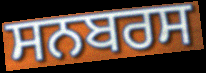
ਸਨਬਰਸ